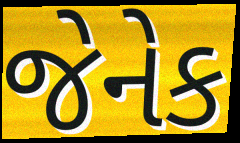
જેનેક